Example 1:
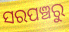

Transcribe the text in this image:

ସରପଞ୍ଚରୁ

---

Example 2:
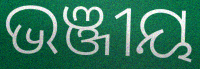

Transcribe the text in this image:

ଭଞ୍ଜୀୟ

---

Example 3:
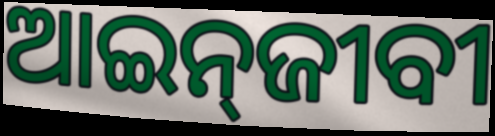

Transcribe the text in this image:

ଆଇନ୍‌ଜୀବୀ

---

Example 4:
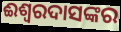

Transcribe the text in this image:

ଈଶ୍ଵରଦାସଙ୍କର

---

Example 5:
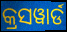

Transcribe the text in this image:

କ୍ରସୱାର୍ଡ